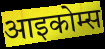
आइकोम्स